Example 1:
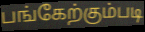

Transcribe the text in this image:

பங்கேற்கும்படி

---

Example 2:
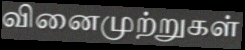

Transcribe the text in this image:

வினைமுற்றுகள்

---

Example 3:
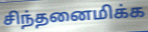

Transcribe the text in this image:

சிந்தனைமிக்க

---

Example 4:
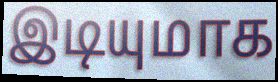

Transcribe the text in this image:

இடியுமாக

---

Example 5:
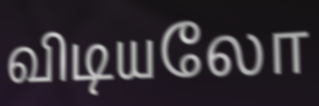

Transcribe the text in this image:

விடியலோ